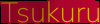
Tsukuru